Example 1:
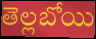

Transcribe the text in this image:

తెల్లబోయి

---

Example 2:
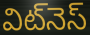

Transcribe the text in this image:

విట్‌నెస్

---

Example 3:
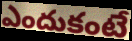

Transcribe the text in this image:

ఎందుకంటే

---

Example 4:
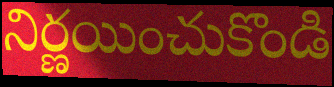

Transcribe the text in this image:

నిర్ణయించుకొండి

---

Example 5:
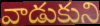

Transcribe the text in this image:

వాడుకుని